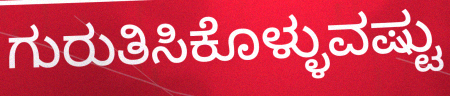
ಗುರುತಿಸಿಕೊಳ್ಳುವಷ್ಟು